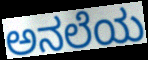
ಅನಲೆಯ